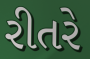
રીતરે